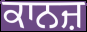
ਕਾਨਜ਼